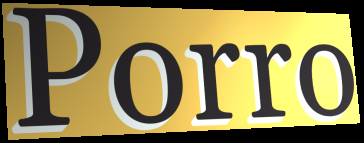
Porro